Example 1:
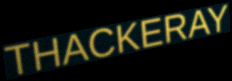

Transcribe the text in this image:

THACKERAY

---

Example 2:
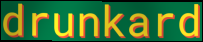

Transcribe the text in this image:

drunkard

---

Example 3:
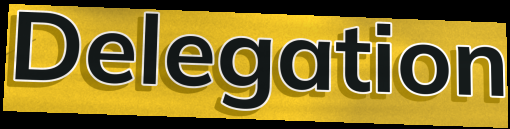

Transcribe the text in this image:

Delegation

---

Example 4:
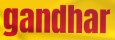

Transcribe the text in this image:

gandhar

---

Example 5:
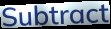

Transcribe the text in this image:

Subtract